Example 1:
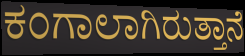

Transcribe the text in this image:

ಕಂಗಾಲಾಗಿರುತ್ತಾನೆ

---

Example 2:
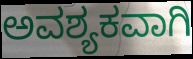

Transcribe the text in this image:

ಅವಶ್ಯಕವಾಗಿ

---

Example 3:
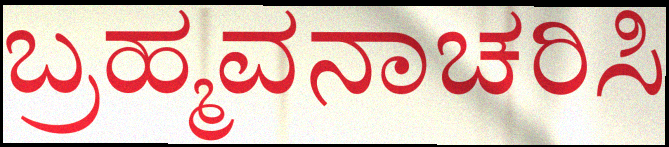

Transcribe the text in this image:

ಬ್ರಹ್ಮವನಾಚರಿಸಿ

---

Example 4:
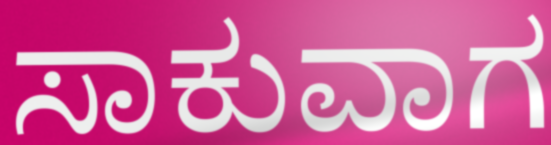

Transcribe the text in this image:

ಸಾಕುವಾಗ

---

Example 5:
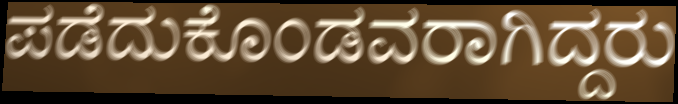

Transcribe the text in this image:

ಪಡೆದುಕೊಂಡವರಾಗಿದ್ದರು